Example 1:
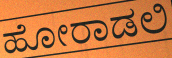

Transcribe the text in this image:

ಹೋರಾಡಲಿ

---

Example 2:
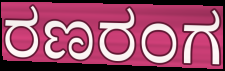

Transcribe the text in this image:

ರಣರಂಗ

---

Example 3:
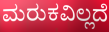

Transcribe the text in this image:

ಮರುಕವಿಲ್ಲದೆ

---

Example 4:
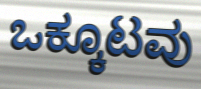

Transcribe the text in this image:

ಒಕ್ಕೂಟವು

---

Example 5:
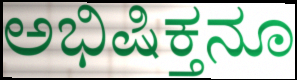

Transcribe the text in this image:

ಅಭಿಷಿಕ್ತನೂ